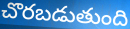
చొరబడుతుంది